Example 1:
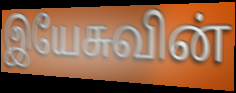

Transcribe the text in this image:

இயேசுவின்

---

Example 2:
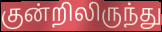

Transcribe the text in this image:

குன்றிலிருந்து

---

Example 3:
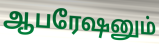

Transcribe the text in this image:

ஆபரேஷனும்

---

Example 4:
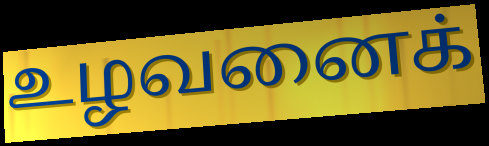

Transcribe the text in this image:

உழவனைக்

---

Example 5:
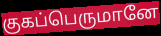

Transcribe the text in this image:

குகப்பெருமானே